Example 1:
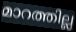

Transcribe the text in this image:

മാറത്തില്ല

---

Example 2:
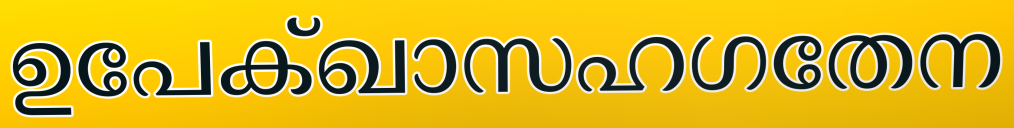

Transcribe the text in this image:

ഉപേക്ഖാസഹഗതേന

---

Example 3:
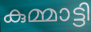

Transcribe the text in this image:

കുമ്മാട്ടി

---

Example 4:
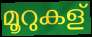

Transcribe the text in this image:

മൂറുകള്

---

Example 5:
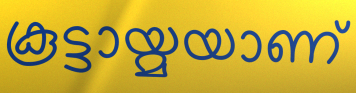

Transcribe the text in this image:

കൂട്ടായ്മയാണ്